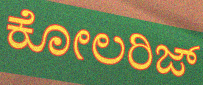
ಕೋಲರಿಜ್